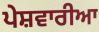
ਪੇਸ਼ਵਾਰੀਆ